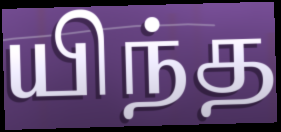
யிந்த